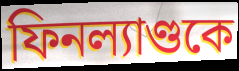
ফিনল্যাণ্ডকে